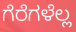
ಗೆರೆಗಳೆಲ್ಲ